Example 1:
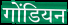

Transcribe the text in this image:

गोंडियन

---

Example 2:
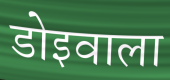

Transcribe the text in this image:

डोइवाला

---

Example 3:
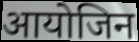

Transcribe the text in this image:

आयोजिन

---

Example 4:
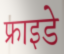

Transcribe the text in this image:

फ्राइडे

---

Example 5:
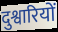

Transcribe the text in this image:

दुश्वारियों